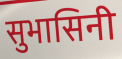
सुभासिनी